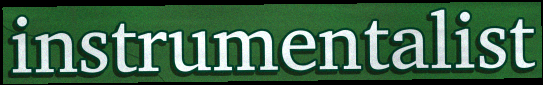
instrumentalist